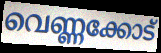
വെണ്ണക്കോട്